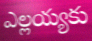
ఎల్లయ్యకు